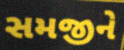
સમજીને